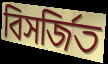
বিসর্জিত